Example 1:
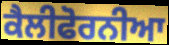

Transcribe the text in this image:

ਕੈਲੀਫੋਰਨੀਆ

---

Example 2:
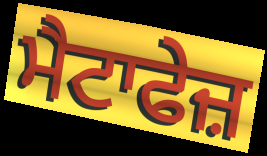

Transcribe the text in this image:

ਮੈਟਾਫੇਜ਼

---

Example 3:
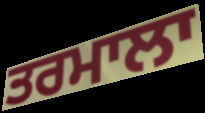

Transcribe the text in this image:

ਤਰਮਾਲਾ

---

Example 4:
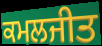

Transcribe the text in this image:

ਕਮਲਜੀਤ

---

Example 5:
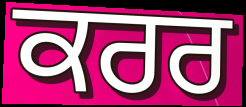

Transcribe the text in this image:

ਕਰਰ